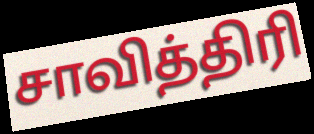
சாவித்திரி